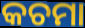
କଚମା